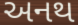
અનથ